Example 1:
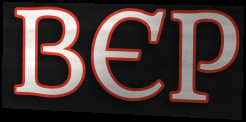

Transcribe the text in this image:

BEP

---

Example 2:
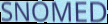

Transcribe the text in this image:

SNOMED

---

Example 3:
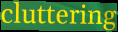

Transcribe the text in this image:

cluttering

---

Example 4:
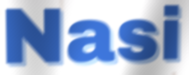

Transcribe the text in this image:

Nasi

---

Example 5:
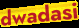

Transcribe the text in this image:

dwadasi